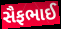
સૈફભાઈ